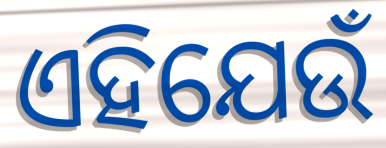
ଏହିଯେଉଁ